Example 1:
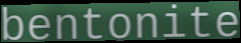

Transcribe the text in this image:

bentonite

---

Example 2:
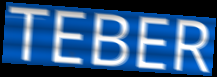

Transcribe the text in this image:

TEBER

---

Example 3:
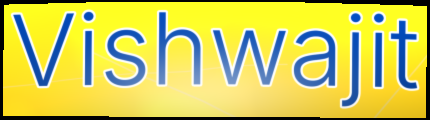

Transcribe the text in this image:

Vishwajit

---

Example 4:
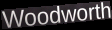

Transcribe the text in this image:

Woodworth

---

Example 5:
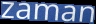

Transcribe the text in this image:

zaman